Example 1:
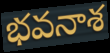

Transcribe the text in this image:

భవనాశ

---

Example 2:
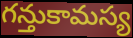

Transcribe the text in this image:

గన్తుకామస్య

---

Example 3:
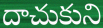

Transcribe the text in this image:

దాచుకుని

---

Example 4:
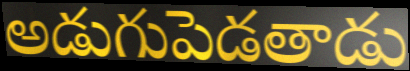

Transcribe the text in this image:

అడుగుపెడతాడు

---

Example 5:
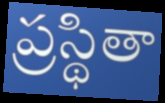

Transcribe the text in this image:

ప్రస్థితా